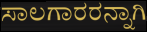
ಸಾಲಗಾರರನ್ನಾಗಿ